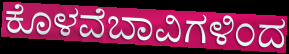
ಕೊಳವೆಬಾವಿಗಳಿಂದ